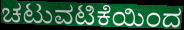
ಚಟುವಟಿಕೆಯಿಂದ